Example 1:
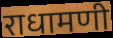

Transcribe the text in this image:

राधामणी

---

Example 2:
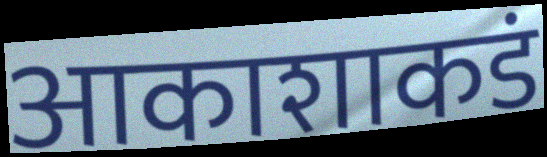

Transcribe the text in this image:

आकाशाकडं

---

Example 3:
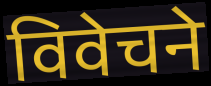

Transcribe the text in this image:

विवेचने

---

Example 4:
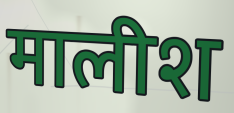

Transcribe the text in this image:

मालीश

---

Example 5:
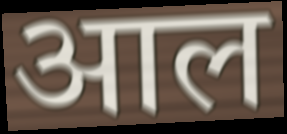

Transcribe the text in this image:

आल